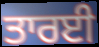
ਤਾਰਈ